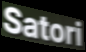
Satori